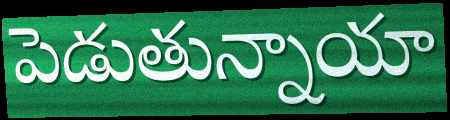
పెడుతున్నాయా